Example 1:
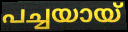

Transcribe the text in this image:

പച്ചയായ്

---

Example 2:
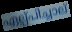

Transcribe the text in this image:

ഏല്പ്പിച്ചാല്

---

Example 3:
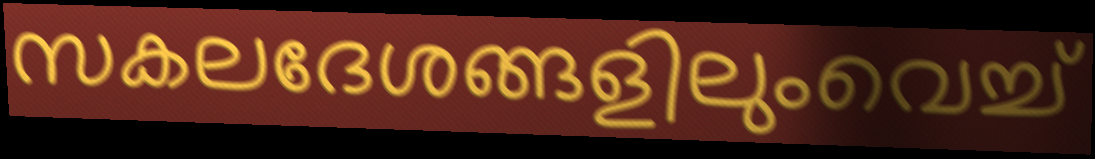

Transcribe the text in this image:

സകലദേശങ്ങളിലുംവെച്ച്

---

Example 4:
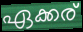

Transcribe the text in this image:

ഏക്കര്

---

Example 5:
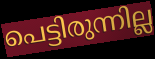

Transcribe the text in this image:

പെട്ടിരുന്നില്ല